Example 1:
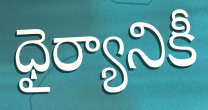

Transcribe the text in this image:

ధైర్యానికీ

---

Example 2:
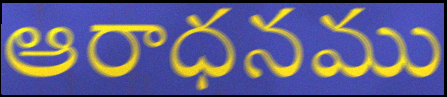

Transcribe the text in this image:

ఆరాధనము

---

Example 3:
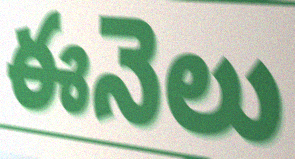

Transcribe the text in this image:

ఈనెలు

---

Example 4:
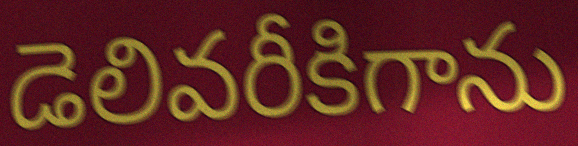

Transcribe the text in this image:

డెలివరీకిగాను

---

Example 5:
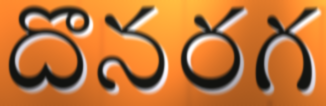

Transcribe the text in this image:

దొనరగ